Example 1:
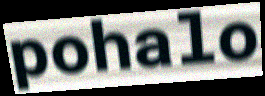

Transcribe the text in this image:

pohalo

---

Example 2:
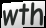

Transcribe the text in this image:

wth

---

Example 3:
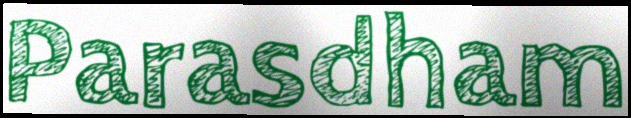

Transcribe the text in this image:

Parasdham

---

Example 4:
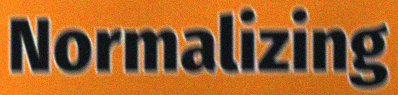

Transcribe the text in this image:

Normalizing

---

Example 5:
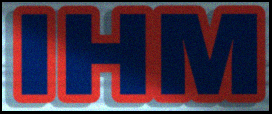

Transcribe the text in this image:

IHM